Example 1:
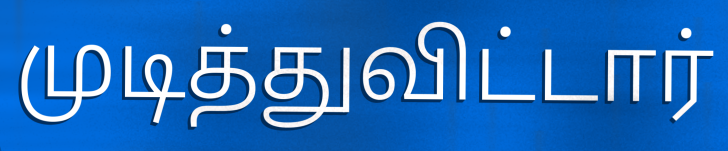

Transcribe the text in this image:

முடித்துவிட்டார்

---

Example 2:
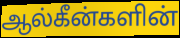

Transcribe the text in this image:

ஆல்கீன்களின்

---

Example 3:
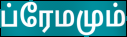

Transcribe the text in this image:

ப்ரேமமும்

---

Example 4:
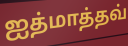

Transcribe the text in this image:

ஐத்மாத்தவ்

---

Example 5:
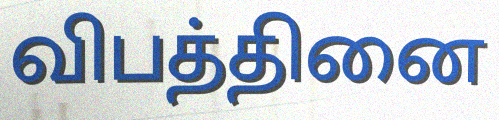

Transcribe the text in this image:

விபத்தினை